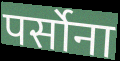
पर्सोना